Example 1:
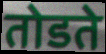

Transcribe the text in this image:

तोडते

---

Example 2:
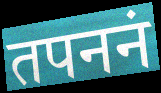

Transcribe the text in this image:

तपननं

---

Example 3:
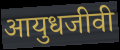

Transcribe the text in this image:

आयुधजीवी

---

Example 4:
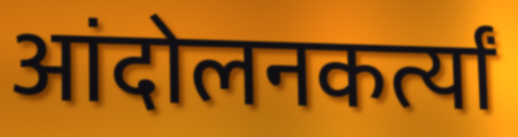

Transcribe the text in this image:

आंदोलनकर्त्यां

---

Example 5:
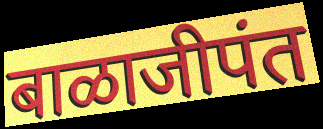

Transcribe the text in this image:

बाळाजीपंत